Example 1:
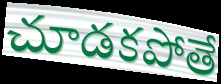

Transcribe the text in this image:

చూడకపోతే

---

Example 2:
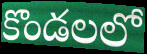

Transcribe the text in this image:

కొండలలో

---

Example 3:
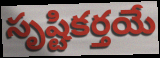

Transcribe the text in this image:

సృష్టికర్తయే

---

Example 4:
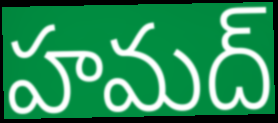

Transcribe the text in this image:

హమద్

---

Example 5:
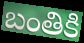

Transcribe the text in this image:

బంతికి